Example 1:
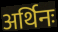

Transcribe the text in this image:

अर्थिनः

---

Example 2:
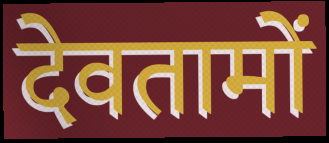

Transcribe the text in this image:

देवतामों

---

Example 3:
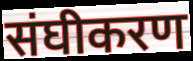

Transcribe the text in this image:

संघीकरण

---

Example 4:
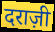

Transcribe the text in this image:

दराज़ी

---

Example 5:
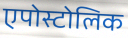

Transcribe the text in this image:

एपोस्टोलिक